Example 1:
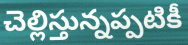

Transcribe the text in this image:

చెల్లిస్తున్నప్పటికీ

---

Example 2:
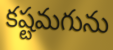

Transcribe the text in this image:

కష్టమగును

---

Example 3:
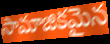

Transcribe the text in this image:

సామాజికమైన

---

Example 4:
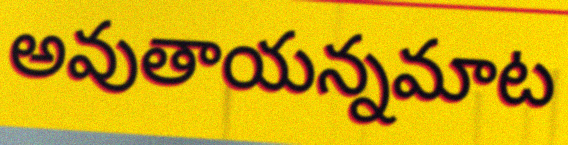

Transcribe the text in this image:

అవుతాయన్నమాట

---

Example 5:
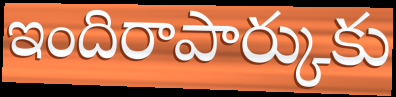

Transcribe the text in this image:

ఇందిరాపార్కుకు